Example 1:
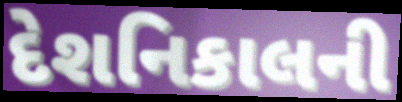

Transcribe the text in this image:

દેશનિકાલની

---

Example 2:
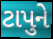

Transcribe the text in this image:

ટાપુને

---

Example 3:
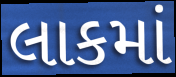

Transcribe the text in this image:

લાકમાં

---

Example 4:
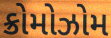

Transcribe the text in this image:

ક્રોમોઝોમ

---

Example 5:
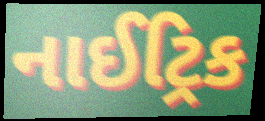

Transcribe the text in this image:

નાઈટ્રિક